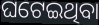
ଘଟେଇଥିବା